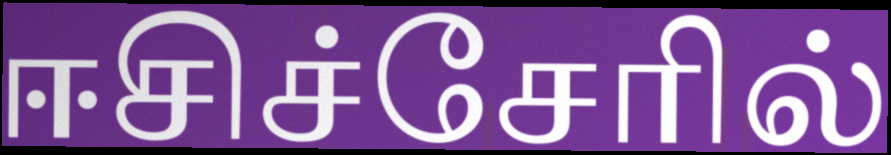
ஈசிச்சேரில்